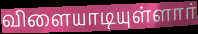
விளையாடியுள்ளார்